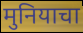
मुनियाचा